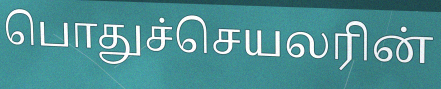
பொதுச்செயலரின்